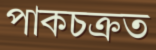
পাকচক্ৰত